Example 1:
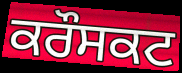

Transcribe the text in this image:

ਕਰੌਸਕਟ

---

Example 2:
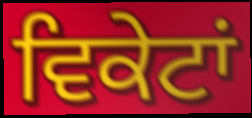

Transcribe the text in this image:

ਵਿਕੇਟਾਂ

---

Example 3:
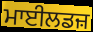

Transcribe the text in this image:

ਮਾਈਲਡਜ਼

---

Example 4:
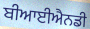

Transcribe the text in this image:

ਬੀਆਈਐਨਡੀ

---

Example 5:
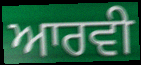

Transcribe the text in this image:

ਆਰਵੀ